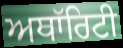
ਅਥਾੱਰਿਟੀ